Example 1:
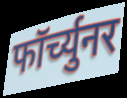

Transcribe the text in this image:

फॉर्च्युनर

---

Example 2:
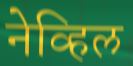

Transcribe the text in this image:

नेव्हिल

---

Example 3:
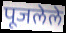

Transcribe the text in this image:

पूजलेले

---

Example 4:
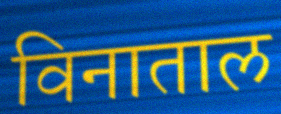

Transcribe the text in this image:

विनाताल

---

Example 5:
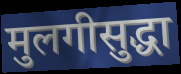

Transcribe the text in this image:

मुलगीसुद्धा